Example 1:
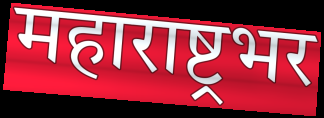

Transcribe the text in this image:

महाराष्ट्रभर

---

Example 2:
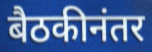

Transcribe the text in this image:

बैठकीनंतर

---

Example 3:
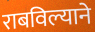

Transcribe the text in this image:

राबविल्याने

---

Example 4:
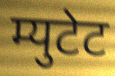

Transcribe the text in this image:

म्युटेट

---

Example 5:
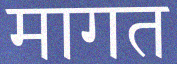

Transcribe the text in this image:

मागत